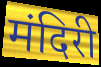
मंदिरी